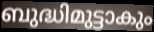
ബുദ്ധിമുട്ടാകും